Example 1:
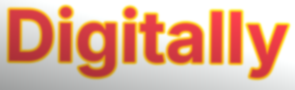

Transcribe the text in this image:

Digitally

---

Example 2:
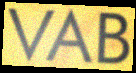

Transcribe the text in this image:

VAB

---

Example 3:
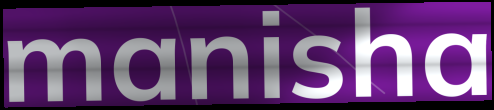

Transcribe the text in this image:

manisha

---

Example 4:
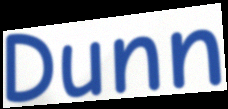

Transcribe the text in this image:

Dunn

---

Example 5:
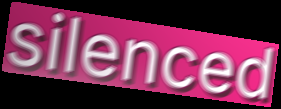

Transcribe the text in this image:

silenced